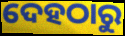
ଦେହଠାରୁ